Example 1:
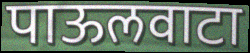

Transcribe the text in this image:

पाऊलवाटा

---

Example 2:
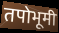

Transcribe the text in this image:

तपोभूमी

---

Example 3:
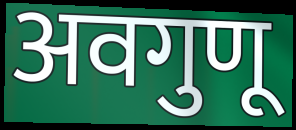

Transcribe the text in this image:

अवगुणू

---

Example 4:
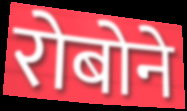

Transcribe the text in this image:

रोबोने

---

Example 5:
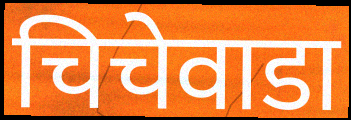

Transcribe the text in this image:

चिचेवाडा